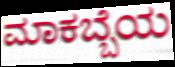
ಮಾಕಬ್ಬೆಯ